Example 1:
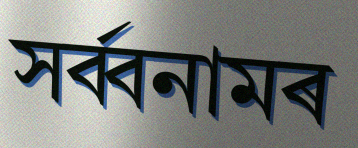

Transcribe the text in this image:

সৰ্ব্বনামৰ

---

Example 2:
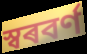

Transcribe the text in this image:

স্বৰবৰ্ণ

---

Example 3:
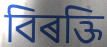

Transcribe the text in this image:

বিৰক্তি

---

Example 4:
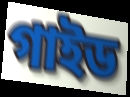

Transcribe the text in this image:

গাইড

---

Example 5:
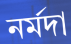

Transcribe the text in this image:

নৰ্মদা